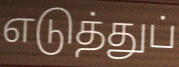
எடுத்துப்